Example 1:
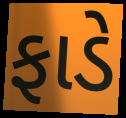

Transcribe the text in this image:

ફાડે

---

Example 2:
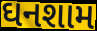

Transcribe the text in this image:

ઘનશામ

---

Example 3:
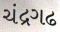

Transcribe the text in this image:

ચંદ્રગઢ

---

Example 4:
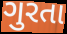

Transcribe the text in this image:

ગુરતા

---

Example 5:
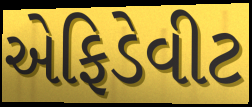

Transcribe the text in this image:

એફિડેવીટ